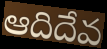
ఆదిదేవ